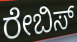
ರೇಬಿಸ್